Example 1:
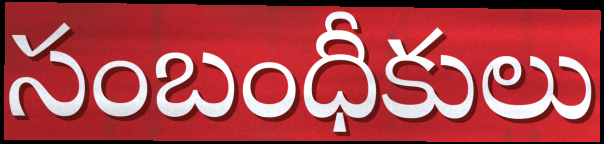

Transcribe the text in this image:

సంబంధీకులు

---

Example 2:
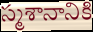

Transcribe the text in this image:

స్మశానానికి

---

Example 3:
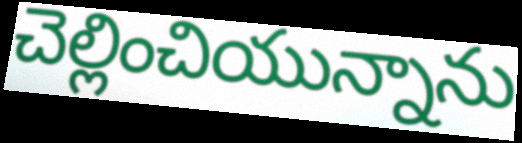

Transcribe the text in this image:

చెల్లించియున్నాను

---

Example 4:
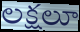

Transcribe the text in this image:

లక్షలూ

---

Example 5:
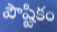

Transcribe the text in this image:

పౌష్టికం